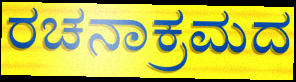
ರಚನಾಕ್ರಮದ